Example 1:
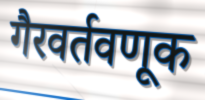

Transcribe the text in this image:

गैरवर्तवणूक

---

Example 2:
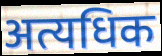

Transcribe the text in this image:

अत्यधिक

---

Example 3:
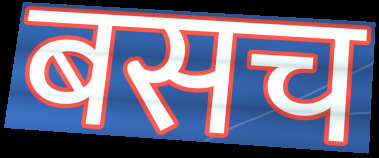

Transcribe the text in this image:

बसच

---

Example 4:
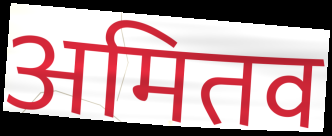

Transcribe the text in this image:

अमितव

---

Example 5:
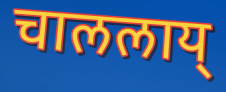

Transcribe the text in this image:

चाललाय्